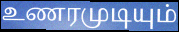
உணரமுடியும்